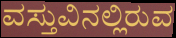
ವಸ್ತುವಿನಲ್ಲಿರುವ